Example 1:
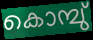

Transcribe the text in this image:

കൊമ്പു്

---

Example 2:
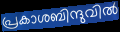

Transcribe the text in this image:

പ്രകാശബിന്ദുവിൽ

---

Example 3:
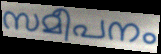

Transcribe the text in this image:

സമീപനം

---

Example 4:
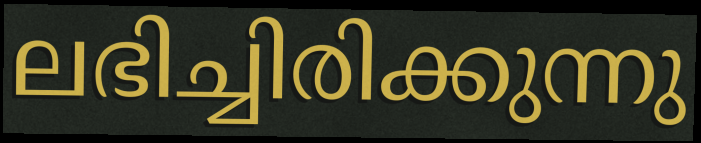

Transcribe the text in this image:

ലഭിച്ചിരിക്കുന്നു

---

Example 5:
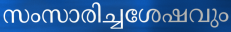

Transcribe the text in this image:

സംസാരിച്ചശേഷവും